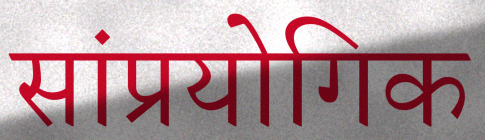
सांप्रयोगिक